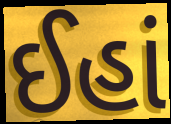
ઈહાં